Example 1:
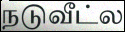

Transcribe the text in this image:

நடுவீட்ல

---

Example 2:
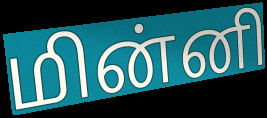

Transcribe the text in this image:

மின்னி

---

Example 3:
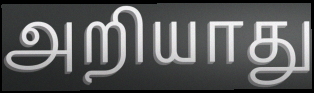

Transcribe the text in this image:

அறியாது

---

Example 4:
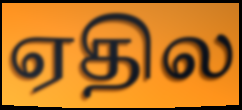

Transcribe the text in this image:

ஏதில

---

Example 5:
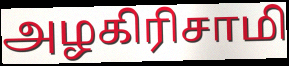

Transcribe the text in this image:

அழகிரிசாமி